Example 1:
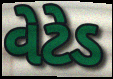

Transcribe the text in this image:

વેટેડ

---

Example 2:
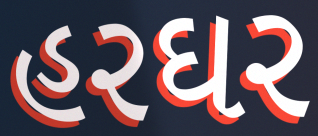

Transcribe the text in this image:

હરઘર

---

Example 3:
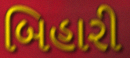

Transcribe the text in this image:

બિહારી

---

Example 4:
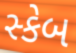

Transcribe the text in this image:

સ્કેબ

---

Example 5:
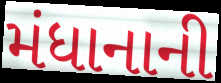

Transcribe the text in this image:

મંધાનાની